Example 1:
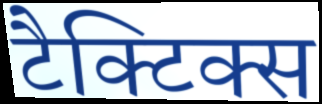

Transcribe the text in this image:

टैक्टिक्स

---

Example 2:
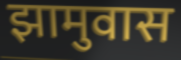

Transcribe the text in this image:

झामुवास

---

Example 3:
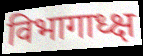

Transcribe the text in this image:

विभागाध्क्ष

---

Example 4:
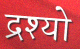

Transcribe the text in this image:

द्रश्यो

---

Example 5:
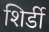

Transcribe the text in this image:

शिर्डी